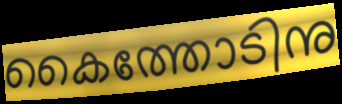
കൈത്തോടിനു